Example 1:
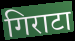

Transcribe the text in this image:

गिराटा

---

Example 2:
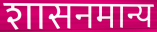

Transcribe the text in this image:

शासनमान्य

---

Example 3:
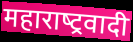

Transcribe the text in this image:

महाराष्ट्रवादी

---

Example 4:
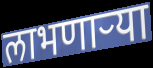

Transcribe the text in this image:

लाभणाऱ्या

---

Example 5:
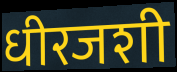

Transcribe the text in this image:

धीरजशी